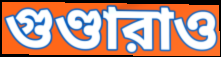
গুণ্ডারাও